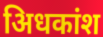
अिधकांश